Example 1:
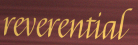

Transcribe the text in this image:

reverential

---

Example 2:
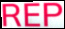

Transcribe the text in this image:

REP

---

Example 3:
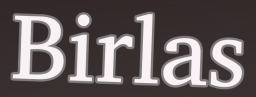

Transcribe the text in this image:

Birlas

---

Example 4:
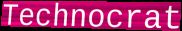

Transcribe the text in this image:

Technocrat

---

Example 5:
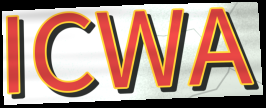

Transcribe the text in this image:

ICWA